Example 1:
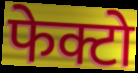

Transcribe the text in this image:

फेक्टो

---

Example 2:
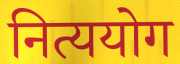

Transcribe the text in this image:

नित्ययोग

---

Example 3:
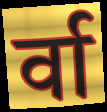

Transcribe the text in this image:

र्वा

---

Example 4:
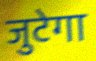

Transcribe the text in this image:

जुटेगा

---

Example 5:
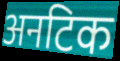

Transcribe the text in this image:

अनटिक